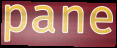
pane